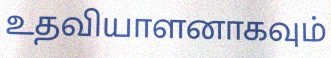
உதவியாளனாகவும்